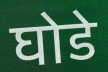
घोडे